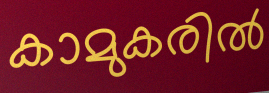
കാമുകരിൽ